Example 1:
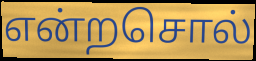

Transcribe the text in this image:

என்றசொல்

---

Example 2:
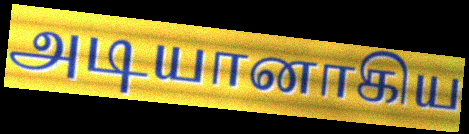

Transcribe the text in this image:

அடியானாகிய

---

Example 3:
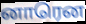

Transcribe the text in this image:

னாரென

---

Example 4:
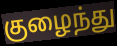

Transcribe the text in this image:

குழைந்து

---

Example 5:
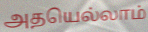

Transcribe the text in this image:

அதயெல்லாம்